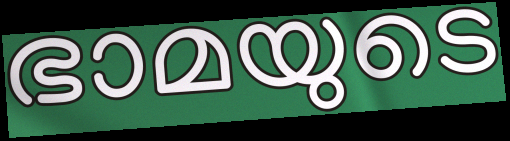
ഭാമയുടെ